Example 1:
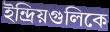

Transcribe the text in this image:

ইন্দ্রিয়গুলিকে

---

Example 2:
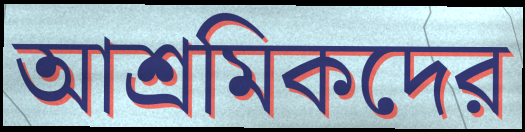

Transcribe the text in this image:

আশ্রমিকদের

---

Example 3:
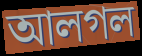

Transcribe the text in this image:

আলগল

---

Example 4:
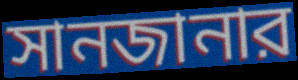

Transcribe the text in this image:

সানজানার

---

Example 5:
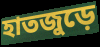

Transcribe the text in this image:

হাতজুড়ে